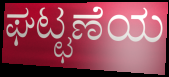
ಘಟ್ಟಣೆಯ